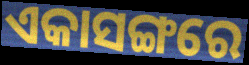
ଏକାସଙ୍ଗରେ